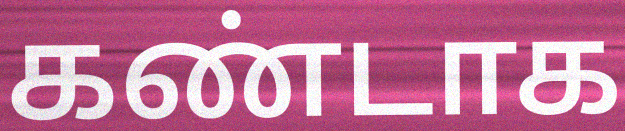
கண்டாக